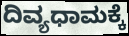
ದಿವ್ಯಧಾಮಕ್ಕೆ